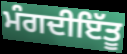
ਮੰਗਦੀਇੱਤੂ